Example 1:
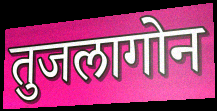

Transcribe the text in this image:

तुजलागोन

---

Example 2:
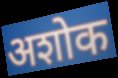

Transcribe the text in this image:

अशोक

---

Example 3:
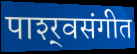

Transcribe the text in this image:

पाश्र्वसंगीत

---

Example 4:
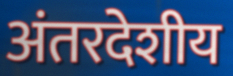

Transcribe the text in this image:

अंतरदेशीय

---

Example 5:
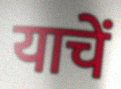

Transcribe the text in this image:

याचें